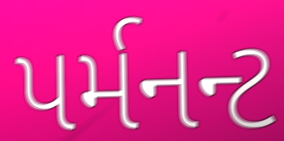
પર્મનન્ટ